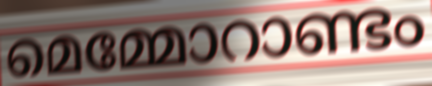
മെമ്മോറാണ്ടം